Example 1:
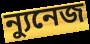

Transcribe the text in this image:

ন্যুনেজ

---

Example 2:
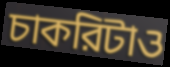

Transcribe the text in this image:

চাকরিটাও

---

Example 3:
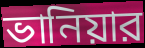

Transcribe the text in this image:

ভানিয়ার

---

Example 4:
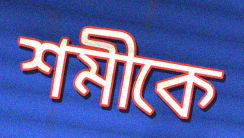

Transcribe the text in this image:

শমীকে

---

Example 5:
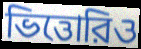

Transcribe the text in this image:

ভিত্তোরিও